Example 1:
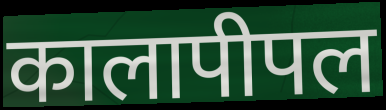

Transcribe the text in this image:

कालापीपल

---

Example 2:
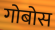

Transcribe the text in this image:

गोबोस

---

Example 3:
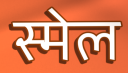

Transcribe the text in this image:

स्‍मेल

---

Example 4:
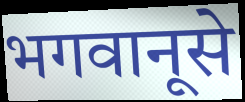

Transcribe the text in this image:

भगवानूसे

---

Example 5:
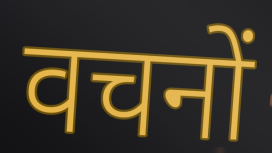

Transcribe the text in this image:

वचनों